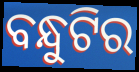
ବନ୍ଧୁଟିର